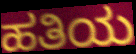
ಹತಿಯ